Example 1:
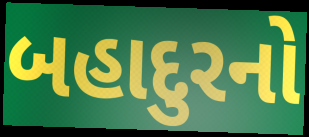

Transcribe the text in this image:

બહાદુરનો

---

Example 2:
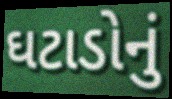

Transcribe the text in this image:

ઘટાડોનું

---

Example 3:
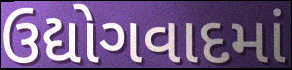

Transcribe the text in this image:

ઉદ્યોગવાદમાં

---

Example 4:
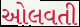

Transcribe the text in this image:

ઓલવતી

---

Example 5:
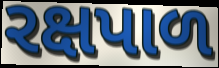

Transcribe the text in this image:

રક્ષપાળ